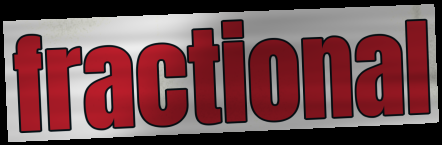
fractional